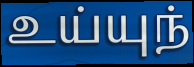
உய்யுந்